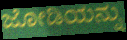
ಜೋಡಿಯನ್ನು